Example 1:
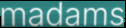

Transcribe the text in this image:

madams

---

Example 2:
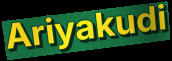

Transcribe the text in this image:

Ariyakudi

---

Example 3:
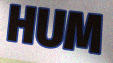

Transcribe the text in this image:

HUM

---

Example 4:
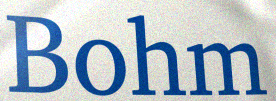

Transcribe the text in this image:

Bohm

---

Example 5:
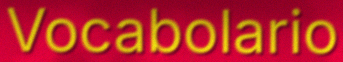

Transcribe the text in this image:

Vocabolario